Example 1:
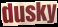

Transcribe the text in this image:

dusky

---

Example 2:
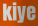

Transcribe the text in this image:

kiye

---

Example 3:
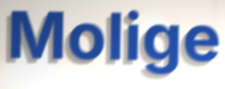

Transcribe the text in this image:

Molige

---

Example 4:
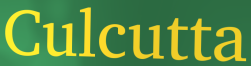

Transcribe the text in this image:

Culcutta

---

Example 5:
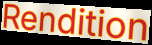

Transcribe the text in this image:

Rendition